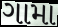
ગામા